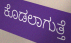
ಕೊಡಲಾಗುತ್ತೆ